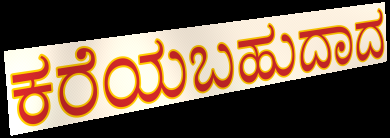
ಕರೆಯಬಹುದಾದ